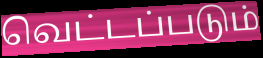
வெட்டப்படும்